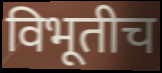
विभूतीच